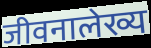
जीवनालेख्य